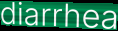
diarrhea